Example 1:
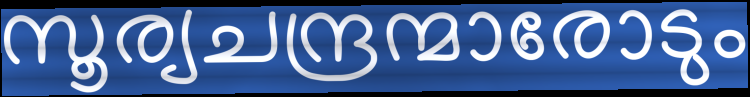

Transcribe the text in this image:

സൂര്യചന്ദ്രന്മാരോടും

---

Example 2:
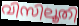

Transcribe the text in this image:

വിസിലൂതി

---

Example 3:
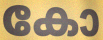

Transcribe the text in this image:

കോ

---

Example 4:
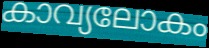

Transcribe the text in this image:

കാവ്യലോകം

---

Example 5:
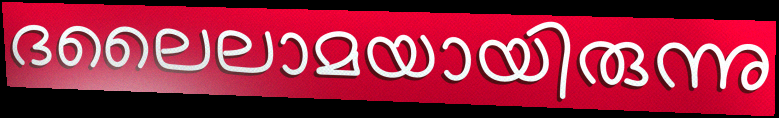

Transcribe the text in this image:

ദലൈലാമയായിരുന്നു